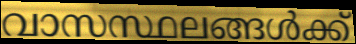
വാസസ്ഥലങ്ങൾക്ക്